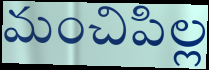
మంచిపిల్ల